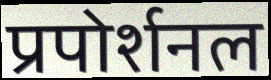
प्रपोर्शनल